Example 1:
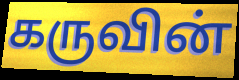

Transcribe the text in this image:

கருவின்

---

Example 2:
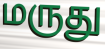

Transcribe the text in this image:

மருது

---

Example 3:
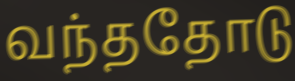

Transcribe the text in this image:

வந்ததோடு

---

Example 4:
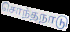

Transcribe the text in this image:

சொந்தநாடு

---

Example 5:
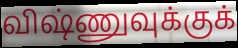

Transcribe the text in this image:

விஷ்ணுவுக்குக்